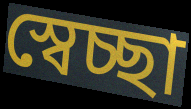
স্বেচ্ছা